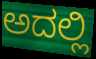
ಅದಲ್ಲಿ